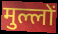
मुल्लों